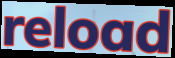
reload